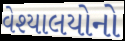
વેશ્યાલયોનો